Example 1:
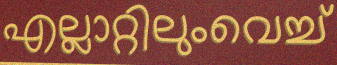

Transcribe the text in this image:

എല്ലാറ്റിലുംവെച്ച്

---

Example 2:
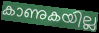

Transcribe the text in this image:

കാണുകയില്ല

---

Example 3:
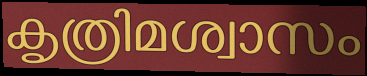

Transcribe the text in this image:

കൃത്രിമശ്വാസം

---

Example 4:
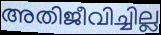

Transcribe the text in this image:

അതിജീവിച്ചില്ല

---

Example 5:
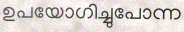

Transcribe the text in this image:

ഉപയോഗിച്ചുപോന്ന